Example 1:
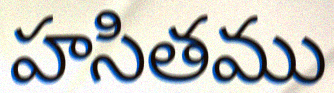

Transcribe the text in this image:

హసితము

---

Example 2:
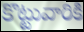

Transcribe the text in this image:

కొట్టువారికి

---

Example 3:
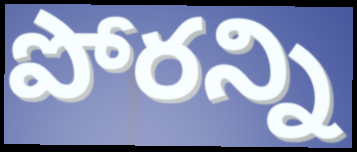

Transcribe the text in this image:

పోరన్ని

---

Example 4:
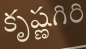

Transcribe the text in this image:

కృష్ణగిరి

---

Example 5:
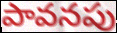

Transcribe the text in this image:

పావనపు